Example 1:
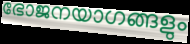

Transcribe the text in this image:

ഭോജനയാഗങ്ങളും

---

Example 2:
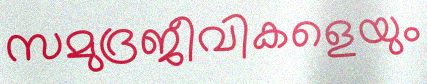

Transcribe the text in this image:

സമുദ്രജീവികളെയും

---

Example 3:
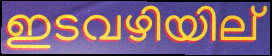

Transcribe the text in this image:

ഇടവഴിയില്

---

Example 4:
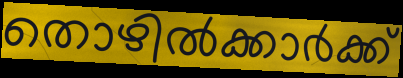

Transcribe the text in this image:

തൊഴിൽക്കാർക്ക്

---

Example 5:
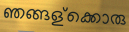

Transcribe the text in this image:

ഞങ്ങള്ക്കൊരു